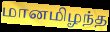
மானமிழந்த